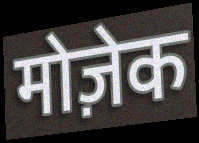
मोज़ेक